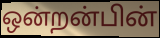
ஒன்றன்பின்